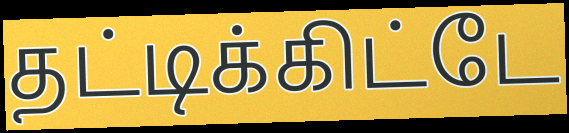
தட்டிக்கிட்டே